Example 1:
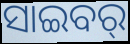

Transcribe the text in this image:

ସାଇବର୍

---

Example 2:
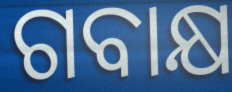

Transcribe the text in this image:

ଗବାକ୍ଷ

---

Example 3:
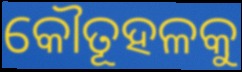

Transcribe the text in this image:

କୌତୂହଳକୁ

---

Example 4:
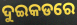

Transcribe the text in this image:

ଦୁଇକଡରେ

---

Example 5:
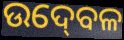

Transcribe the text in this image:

ଉଦ୍‍ବେଳ